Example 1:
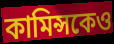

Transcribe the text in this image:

কামিন্সকেও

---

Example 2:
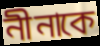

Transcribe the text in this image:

নীনাকে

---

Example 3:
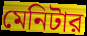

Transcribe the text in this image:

মেনিটার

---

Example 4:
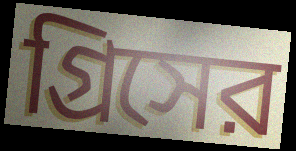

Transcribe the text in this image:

গ্রিসের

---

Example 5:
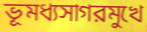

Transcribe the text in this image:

ভূমধ্যসাগরমুখে